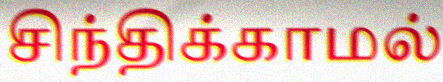
சிந்திக்காமல்